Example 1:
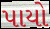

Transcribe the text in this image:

પાયો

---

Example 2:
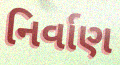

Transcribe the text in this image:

નિર્વાણ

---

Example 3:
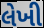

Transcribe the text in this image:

લેખી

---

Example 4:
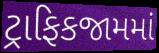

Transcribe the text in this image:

ટ્રાફિકજામમાં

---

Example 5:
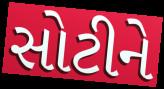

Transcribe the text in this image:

સોટીને